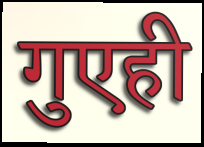
गुएही